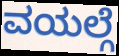
ವಯಲ್ಗೆ